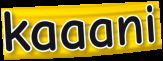
kaaani